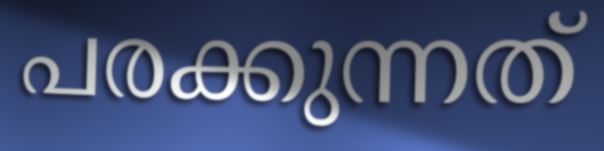
പരക്കുന്നത്